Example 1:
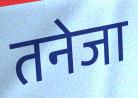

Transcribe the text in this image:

तनेजा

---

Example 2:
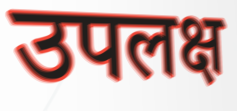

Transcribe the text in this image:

उपलक्ष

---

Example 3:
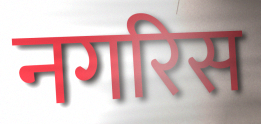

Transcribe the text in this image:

नगरिस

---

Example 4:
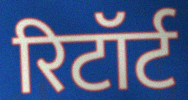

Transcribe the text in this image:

रिटॉर्ट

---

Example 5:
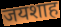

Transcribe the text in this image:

जयशाह